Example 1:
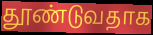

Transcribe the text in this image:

தூண்டுவதாக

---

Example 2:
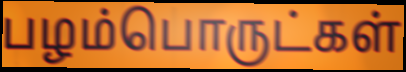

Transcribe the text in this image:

பழம்பொருட்கள்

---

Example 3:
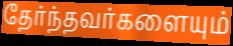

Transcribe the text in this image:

தேர்ந்தவர்களையும்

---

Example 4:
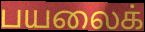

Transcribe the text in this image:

பயலைக்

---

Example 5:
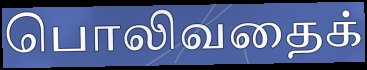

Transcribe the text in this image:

பொலிவதைக்